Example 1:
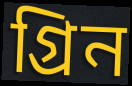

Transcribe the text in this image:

গ্রিন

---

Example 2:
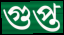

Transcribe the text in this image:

গুপ্ত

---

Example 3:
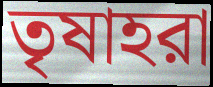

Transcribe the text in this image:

তৃষাহরা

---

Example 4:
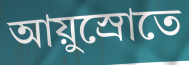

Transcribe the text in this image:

আয়ুস্রোতে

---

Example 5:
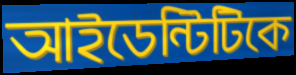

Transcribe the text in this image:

আইডেন্টিটিকে